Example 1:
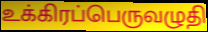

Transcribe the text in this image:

உக்கிரப்பெருவழுதி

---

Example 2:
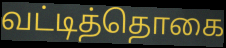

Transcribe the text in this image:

வட்டித்தொகை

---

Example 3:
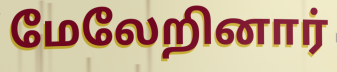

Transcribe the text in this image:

மேலேறினார்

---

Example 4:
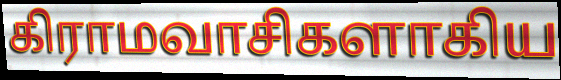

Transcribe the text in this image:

கிராமவாசிகளாகிய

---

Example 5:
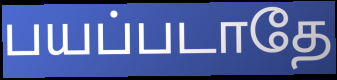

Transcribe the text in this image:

பயப்படாதே